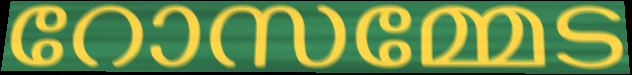
റോസമ്മേട